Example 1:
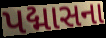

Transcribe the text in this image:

પદ્માસના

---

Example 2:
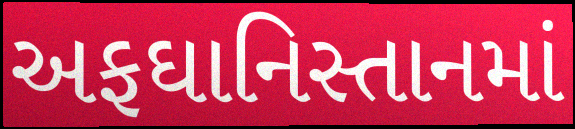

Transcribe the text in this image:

અફઘાનિસ્તાનમાં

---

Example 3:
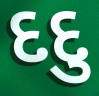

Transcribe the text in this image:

દદુ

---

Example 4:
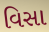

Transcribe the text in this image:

વિસા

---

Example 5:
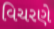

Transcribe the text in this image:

વિચરણે